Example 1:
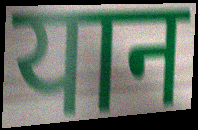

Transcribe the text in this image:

यान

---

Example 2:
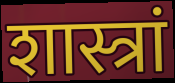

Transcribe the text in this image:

शास्त्रां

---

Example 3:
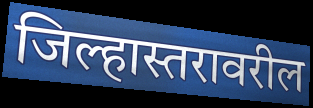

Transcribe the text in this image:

जिल्हास्तरावरील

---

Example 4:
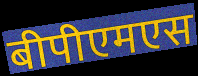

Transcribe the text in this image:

बीपीएमएस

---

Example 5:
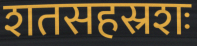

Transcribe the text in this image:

शतसहस्रशः